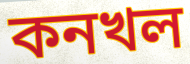
কনখল